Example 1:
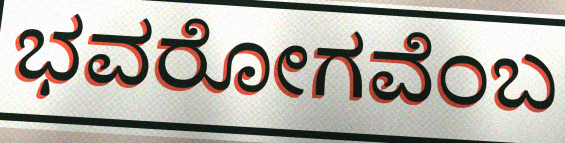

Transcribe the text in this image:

ಭವರೋಗವೆಂಬ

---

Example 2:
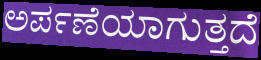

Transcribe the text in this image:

ಅರ್ಪಣೆಯಾಗುತ್ತದೆ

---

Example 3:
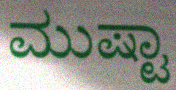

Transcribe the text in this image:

ಮುಷ್ಟಾ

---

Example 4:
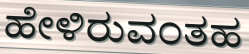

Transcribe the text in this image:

ಹೇಳಿರುವಂತಹ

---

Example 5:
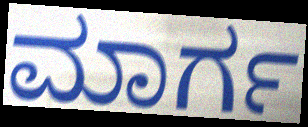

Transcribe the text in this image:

ಮಾರ್ಗ